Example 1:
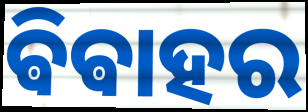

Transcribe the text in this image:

ଵିଵାହର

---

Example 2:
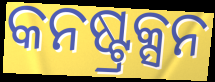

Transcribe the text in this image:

କନଷ୍ଟ୍ରକ୍ସନ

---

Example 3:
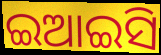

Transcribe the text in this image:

ଇଆଇସି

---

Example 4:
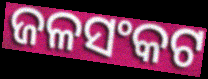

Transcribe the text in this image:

ଜଳସଂକଟ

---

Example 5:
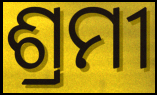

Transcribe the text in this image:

ଶ୍ରମୀ